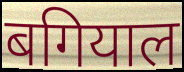
बगियाल